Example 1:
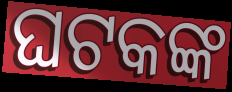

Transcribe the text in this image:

ଘଟକଙ୍କ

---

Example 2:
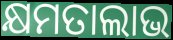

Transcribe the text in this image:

କ୍ଷମତାଲାଭ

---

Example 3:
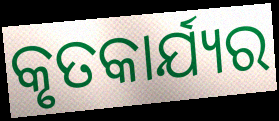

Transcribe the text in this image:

କୃତକାର୍ଯ୍ୟର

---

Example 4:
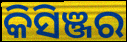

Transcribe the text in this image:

କିସିଞ୍ଜର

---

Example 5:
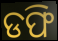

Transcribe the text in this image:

ଡଫି